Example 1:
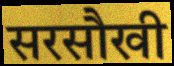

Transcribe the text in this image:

सरसौखी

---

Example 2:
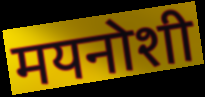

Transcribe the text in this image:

मयनोशी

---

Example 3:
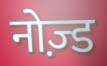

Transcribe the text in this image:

नोज़्ड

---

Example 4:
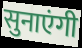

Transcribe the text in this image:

सुनाएंगी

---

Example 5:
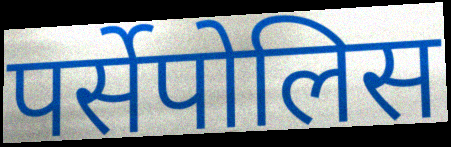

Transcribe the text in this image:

पर्सेपोलिस